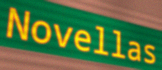
Novellas